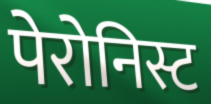
पेरोनिस्ट